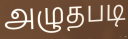
அழுதபடி